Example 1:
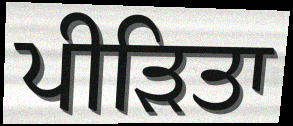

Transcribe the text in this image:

ਪੀੜਿਤਾ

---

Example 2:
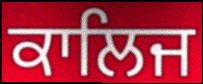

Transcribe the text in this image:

ਕਾਲਿਜ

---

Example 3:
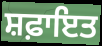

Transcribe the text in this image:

ਸ਼ਫ਼ਾਇਤ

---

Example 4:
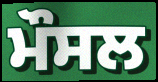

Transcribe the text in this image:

ਮੌਸਲ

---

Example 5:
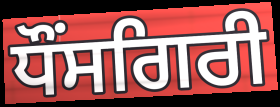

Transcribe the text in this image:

ਧੌਂਸਗਿਰੀ